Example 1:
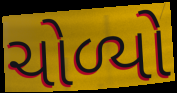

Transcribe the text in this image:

ચોળ્યો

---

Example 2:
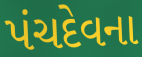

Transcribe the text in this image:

પંચદેવના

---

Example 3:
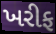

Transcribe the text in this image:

ખરીફ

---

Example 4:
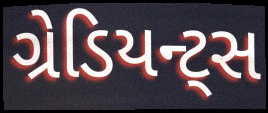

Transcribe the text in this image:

ગ્રેડિયન્ટ્સ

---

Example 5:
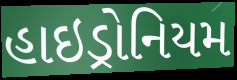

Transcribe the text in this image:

હાઇડ્રોનિયમ